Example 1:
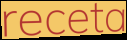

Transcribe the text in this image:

receta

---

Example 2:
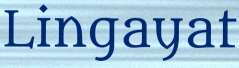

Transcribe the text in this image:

Lingayat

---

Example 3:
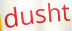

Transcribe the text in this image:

dusht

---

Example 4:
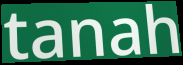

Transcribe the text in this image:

tanah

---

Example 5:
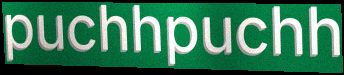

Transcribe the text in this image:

puchhpuchh